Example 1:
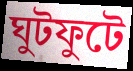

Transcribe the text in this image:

ঘুটফুটে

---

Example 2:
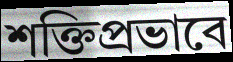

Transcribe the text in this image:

শক্তিপ্রভাবে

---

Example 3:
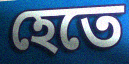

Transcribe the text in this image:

হেতে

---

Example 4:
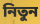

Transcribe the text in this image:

নিতুন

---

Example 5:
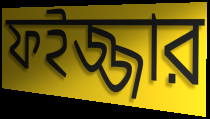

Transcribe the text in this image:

ফইজ্জার